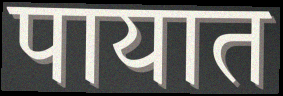
पायात